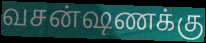
வசன்ஷணக்கு